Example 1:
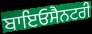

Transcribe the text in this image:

ਬਾਇਓਸੈਨਟਰੀ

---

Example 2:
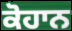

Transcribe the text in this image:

ਕੋਹਾਨ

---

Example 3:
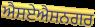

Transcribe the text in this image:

ਐਸਏਐਸਨਗਰ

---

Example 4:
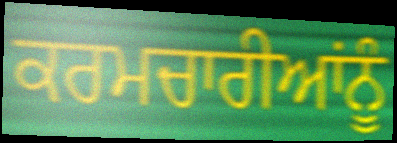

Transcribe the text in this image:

ਕਰਮਚਾਰੀਆਂਨੂੰ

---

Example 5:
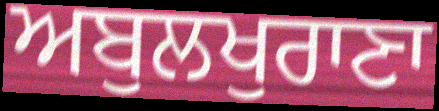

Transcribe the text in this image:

ਅਬੁਲਖੁਰਾਣਾ